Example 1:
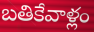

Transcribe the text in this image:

బతికేవాళ్లం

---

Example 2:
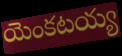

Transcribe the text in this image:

యెంకటయ్య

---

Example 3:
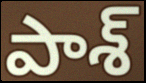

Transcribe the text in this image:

పాశ్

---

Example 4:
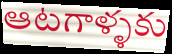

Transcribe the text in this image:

ఆటగాళ్ళకు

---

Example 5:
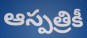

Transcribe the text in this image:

ఆస్పత్రికీ